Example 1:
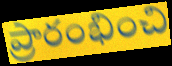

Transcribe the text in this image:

ప్రారంభించి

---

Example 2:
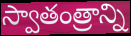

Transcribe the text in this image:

స్వాతంత్రాన్ని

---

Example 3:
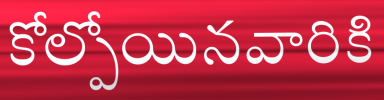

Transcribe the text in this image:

కోల్పోయినవారికి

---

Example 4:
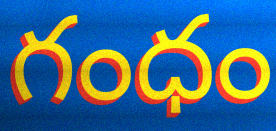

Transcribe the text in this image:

గంధం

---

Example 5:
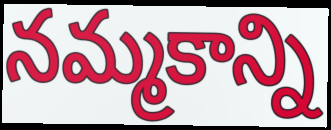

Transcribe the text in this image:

నమ్మకాన్ని